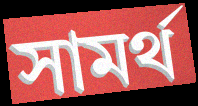
সামর্থ